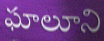
ఘాలూని